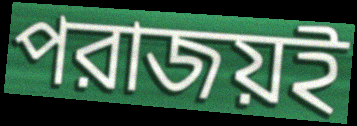
পরাজয়ই